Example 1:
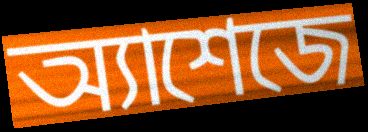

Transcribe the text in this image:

অ্যাশেজে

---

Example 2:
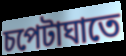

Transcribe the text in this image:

চপেটাঘাতে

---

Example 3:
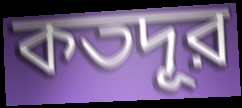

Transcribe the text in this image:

কতদূর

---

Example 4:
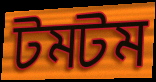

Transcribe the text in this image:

টমটম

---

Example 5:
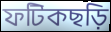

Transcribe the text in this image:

ফটিকছড়ি